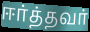
ஈர்த்தவர்